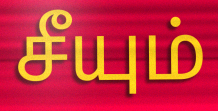
சீயும்